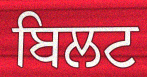
ਬਿਲਟ